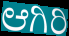
ಆಗಿರಿ